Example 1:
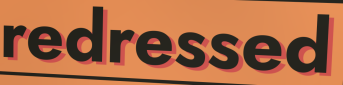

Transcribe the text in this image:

redressed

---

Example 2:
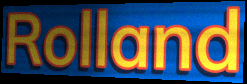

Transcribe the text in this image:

Rolland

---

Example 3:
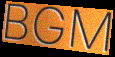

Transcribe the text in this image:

BGM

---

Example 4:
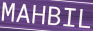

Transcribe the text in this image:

MAHBIL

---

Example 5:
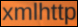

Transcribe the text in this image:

xmlhttp